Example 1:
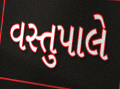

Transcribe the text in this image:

વસ્તુપાલે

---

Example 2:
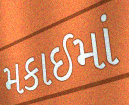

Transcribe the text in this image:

મકાઈમાં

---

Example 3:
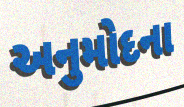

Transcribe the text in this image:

અનુમોદના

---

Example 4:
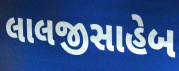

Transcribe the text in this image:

લાલજીસાહેબ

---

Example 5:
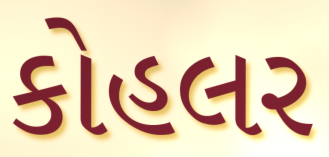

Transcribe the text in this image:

કોહલર